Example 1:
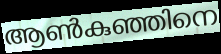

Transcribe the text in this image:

ആൺകുഞ്ഞിനെ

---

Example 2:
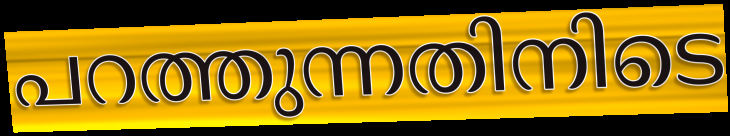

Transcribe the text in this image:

പറത്തുന്നതിനിടെ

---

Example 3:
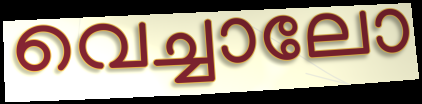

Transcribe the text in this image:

വെച്ചാലോ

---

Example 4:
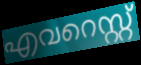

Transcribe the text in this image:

എവറെസ്റ്റ്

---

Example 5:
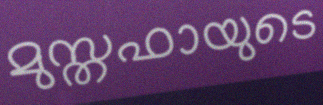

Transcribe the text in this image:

മുസ്തഫായുടെ